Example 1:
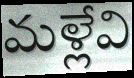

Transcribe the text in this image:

మళ్లేవి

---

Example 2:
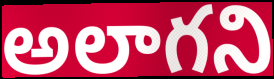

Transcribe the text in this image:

అలాగని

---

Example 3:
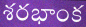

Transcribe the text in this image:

శరభాంక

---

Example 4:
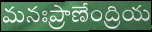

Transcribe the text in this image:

మనఃప్రాణేంద్రియ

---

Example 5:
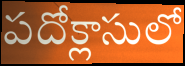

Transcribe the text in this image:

పదోక్లాసులో